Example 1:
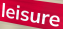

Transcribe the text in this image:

leisure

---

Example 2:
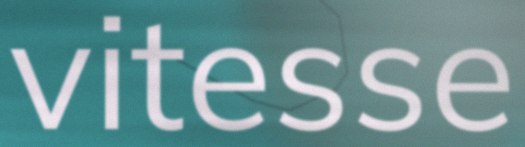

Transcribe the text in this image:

vitesse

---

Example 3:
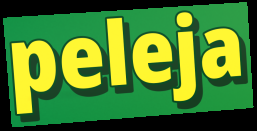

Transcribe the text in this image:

peleja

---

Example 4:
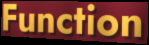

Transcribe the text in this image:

Function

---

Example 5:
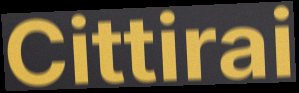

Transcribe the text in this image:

Cittirai